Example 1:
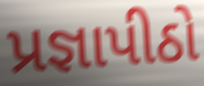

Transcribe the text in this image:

પ્રજ્ઞાપીઠો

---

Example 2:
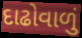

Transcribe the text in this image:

દાઢોવાળું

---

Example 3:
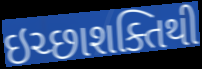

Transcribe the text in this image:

ઇચ્છાશક્તિથી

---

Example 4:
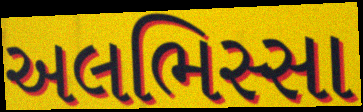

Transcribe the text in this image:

અલભિસ્સા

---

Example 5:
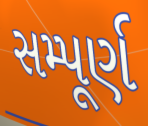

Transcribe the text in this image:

સમ્પૂર્ણ